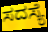
ಸದಸ್ಯೆ